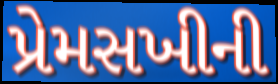
પ્રેમસખીની